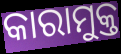
କାରାମୁକ୍ତ